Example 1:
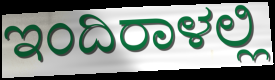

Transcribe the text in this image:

ಇಂದಿರಾಳಲ್ಲಿ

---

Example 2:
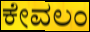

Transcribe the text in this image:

ಕೇವಲಂ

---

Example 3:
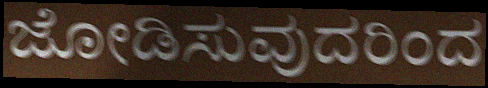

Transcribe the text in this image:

ಜೋಡಿಸುವುದರಿಂದ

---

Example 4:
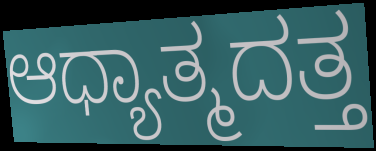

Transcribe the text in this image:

ಆಧ್ಯಾತ್ಮದತ್ತ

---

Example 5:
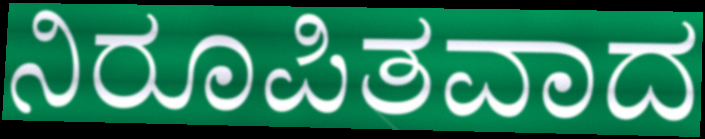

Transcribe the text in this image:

ನಿರೂಪಿತವಾದ